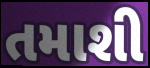
તમાશી